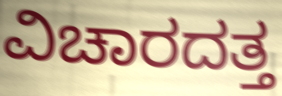
ವಿಚಾರದತ್ತ